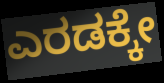
ಎರಡಕ್ಕೇ